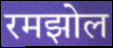
रमझोल